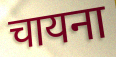
चायना